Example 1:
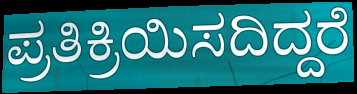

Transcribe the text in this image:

ಪ್ರತಿಕ್ರಿಯಿಸದಿದ್ದರೆ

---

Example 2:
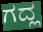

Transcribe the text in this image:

ಗದ್ಲ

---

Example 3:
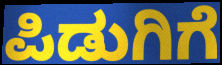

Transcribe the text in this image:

ಪಿಡುಗಿಗೆ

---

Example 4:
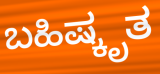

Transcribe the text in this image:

ಬಹಿಷ್ಕೃತ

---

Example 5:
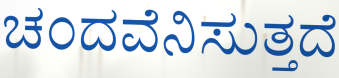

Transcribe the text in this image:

ಚಂದವೆನಿಸುತ್ತದೆ